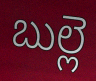
బుల్లె